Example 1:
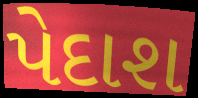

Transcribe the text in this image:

પેદાશ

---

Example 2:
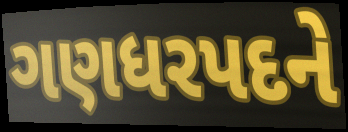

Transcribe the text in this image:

ગણધરપદને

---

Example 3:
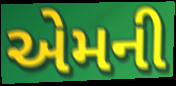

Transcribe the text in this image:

એમની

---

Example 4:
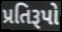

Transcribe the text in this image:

પ્રતિરૂપો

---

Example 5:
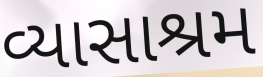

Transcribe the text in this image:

વ્યાસાશ્રમ